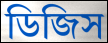
ডিজিস